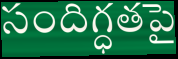
సందిగ్ధతపై